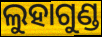
ଲୁହାଗୁଣ୍ଡ